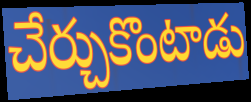
చేర్చుకొంటాడు